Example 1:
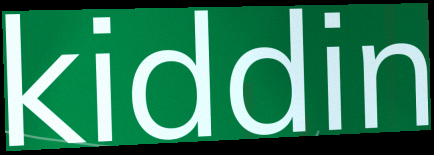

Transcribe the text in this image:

kiddin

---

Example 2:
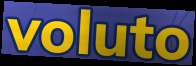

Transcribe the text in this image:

voluto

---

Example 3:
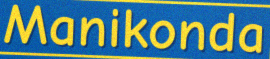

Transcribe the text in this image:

Manikonda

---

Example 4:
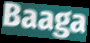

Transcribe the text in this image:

Baaga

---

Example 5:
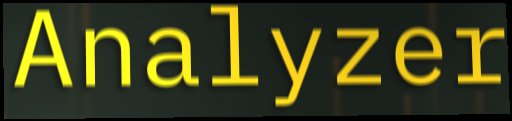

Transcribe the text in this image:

Analyzer